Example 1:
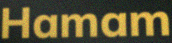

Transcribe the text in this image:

Hamam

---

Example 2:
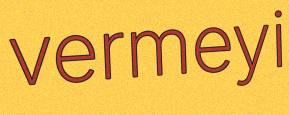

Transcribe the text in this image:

vermeyi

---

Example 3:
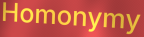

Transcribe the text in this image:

Homonymy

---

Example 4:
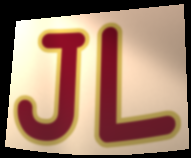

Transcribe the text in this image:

JL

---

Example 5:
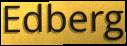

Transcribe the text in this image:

Edberg